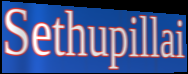
Sethupillai